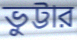
ভুট্টার